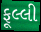
ફૂલ્લી